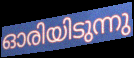
ഓരിയിടുന്നു